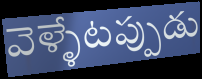
వెళ్ళేటప్పుడు